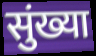
सुंख्या